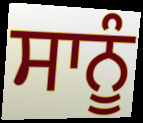
ਸਾਨੂੰ